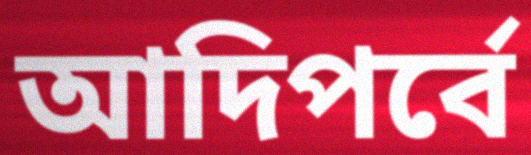
আদিপর্বে